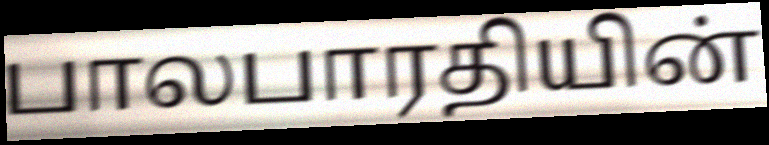
பாலபாரதியின்